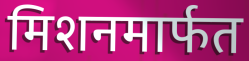
मिशनमार्फत